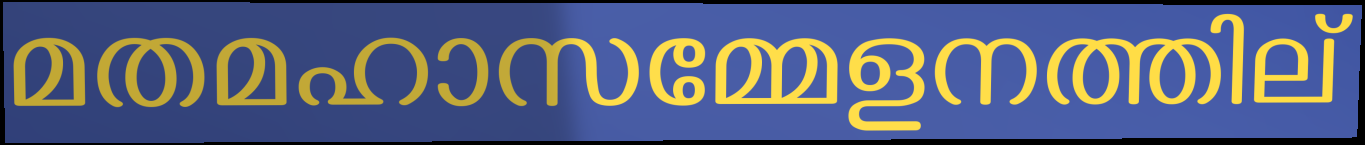
മതമഹാസമ്മേളനത്തില്